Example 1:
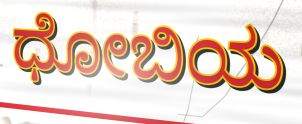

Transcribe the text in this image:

ಧೋಬಿಯ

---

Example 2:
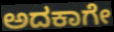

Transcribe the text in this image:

ಅದಕಾಗೇ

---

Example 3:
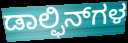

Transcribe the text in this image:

ಡಾಲ್ಫಿನ್‌ಗಳ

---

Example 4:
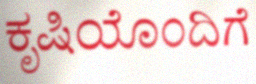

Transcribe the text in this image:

ಕೃಷಿಯೊಂದಿಗೆ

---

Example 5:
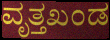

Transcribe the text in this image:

ವೃತ್ತಖಂಡ